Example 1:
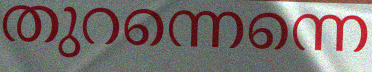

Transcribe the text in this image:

തുറന്നെന്നെ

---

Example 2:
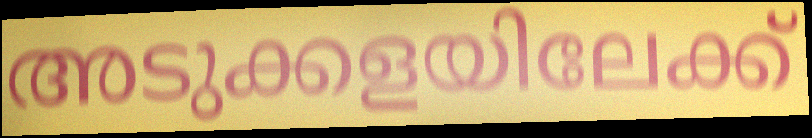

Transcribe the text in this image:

അടുക്കളയിലേക്ക്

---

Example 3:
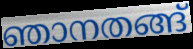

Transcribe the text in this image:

ഞാനതങ്ങ്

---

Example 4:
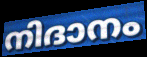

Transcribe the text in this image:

നിദാനം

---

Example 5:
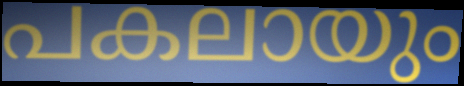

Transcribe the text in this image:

പകലായും